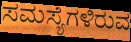
ಸಮಸ್ಯೆಗಳಿರುವ